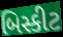
બિસ્કીટ